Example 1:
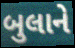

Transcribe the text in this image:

બુલાને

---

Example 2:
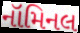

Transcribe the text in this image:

નૉમિનલ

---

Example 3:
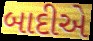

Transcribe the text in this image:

બાદીએ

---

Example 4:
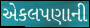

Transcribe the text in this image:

એકલપણાની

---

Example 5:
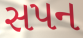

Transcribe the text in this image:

સપન